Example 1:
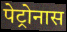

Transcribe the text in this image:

पेट्रोनास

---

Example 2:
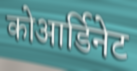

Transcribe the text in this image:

कोआर्डिनेट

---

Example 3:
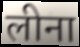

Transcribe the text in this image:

लीना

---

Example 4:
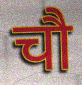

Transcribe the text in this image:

चौ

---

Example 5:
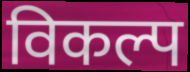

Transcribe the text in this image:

विकल्‍प